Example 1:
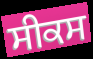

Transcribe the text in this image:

ਸੀਕਸ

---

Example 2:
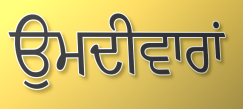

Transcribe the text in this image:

ਉਮਦੀਵਾਰਾਂ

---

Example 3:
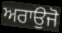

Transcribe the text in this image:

ਅਰਾਉਜੋ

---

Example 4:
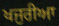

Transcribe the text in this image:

ਖਜੁਰੀਆ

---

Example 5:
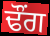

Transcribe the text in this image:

ਢੌਂਗ